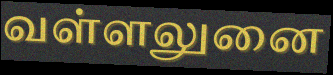
வள்ளலுனை